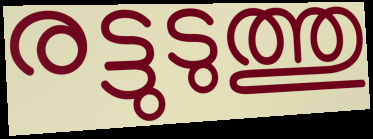
രട്ടുടുത്തു